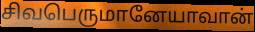
சிவபெருமானேயாவான்